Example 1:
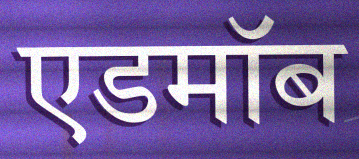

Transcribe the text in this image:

एडमॉब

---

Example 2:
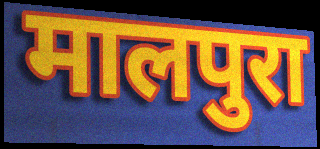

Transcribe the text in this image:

मालपुरा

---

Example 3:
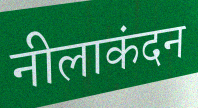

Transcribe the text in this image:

नीलाकंदन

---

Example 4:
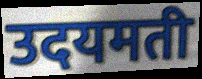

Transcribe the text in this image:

उदयमती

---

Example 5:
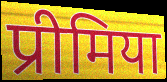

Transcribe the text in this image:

प्रीमिया